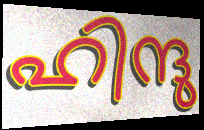
ഹിന്ദു